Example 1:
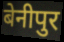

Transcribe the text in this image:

बेनीपुर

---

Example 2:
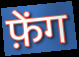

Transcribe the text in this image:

फ़ेंग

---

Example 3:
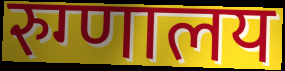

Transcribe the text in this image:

रुग्णालय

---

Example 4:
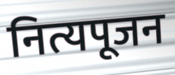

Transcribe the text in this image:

नित्यपूजन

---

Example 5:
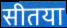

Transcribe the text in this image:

सीतया